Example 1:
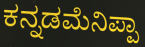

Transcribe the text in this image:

ಕನ್ನಡಮೆನಿಪ್ಪಾ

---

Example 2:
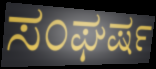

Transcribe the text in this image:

ಸಂಘರ್ಷ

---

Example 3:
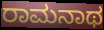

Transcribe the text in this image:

ರಾಮನಾಥ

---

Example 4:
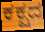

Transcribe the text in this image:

ಕಕ್ಷದ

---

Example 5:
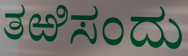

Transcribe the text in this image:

ತಱಿಸಂದು